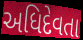
અધિદેવતા